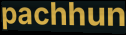
pachhun